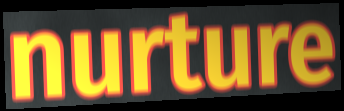
nurture